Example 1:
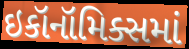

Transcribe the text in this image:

ઇકૉનૉમિક્સમાં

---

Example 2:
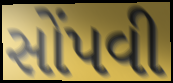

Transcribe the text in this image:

સોંપવી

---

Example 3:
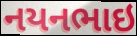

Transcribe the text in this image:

નયનભાઇ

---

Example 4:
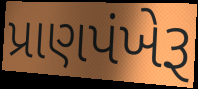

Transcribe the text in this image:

પ્રાણપંખેરૂ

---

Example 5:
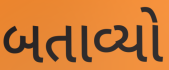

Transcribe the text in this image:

બતાવ્યો